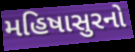
મહિષાસુરનો